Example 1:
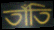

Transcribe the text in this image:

তাঁতি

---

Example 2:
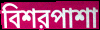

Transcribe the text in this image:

বিশরপাশা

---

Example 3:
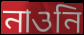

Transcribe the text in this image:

নাওনি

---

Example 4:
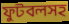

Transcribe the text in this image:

ফুটবলসহ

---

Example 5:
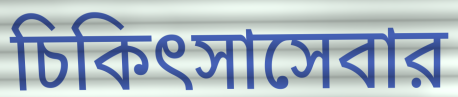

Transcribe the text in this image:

চিকিৎসাসেবার